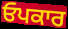
ਓਪਕਾਰ